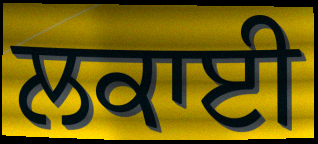
ਲਕਾਈ